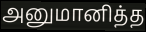
அனுமானித்த